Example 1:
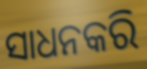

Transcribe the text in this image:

ସାଧନକରି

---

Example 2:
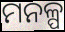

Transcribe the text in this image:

ମନଳ୍ପ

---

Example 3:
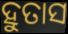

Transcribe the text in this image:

ହୁତାସ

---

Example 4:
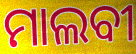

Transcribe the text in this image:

ମାଲବୀ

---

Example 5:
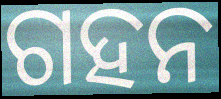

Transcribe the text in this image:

ଗହନ